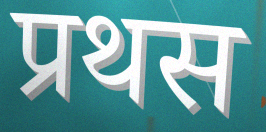
प्रथस